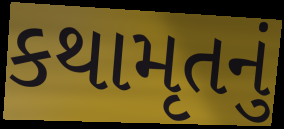
કથામૃતનું